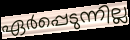
ഏർപ്പെടുന്നില്ല